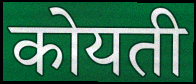
कोयती